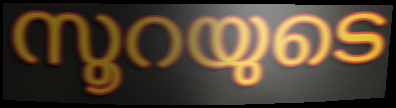
സൂറയുടെ